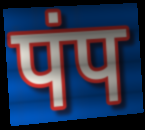
पंप